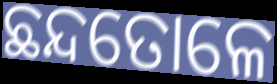
ଛନ୍ଦତୋଳେ